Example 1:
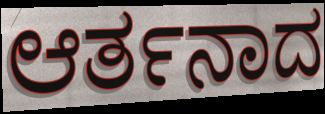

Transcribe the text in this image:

ಆರ್ತನಾದ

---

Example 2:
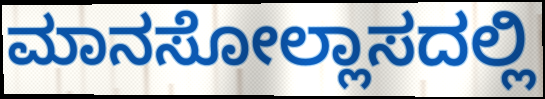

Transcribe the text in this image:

ಮಾನಸೋಲ್ಲಾಸದಲ್ಲಿ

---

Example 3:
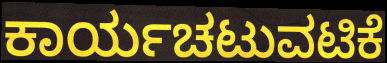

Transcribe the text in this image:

ಕಾರ್ಯಚಟುವಟಿಕೆ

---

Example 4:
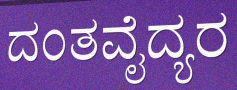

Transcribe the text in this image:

ದಂತವೈದ್ಯರ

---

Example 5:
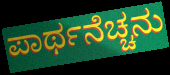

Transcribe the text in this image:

ಪಾರ್ಥನೆಚ್ಚನು